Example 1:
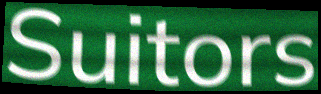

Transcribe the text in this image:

Suitors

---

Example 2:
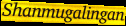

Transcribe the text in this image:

Shanmugalingan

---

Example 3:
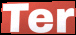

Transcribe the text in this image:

Ter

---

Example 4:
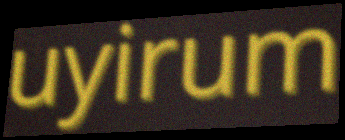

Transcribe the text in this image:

uyirum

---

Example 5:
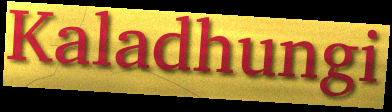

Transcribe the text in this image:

Kaladhungi